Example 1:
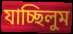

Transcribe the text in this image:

যাচ্ছিলুম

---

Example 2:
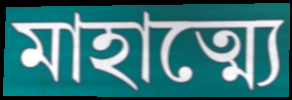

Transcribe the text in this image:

মাহাত্ম্যে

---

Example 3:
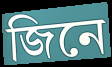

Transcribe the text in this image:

জিনে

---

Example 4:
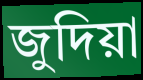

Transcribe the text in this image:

জুদিয়া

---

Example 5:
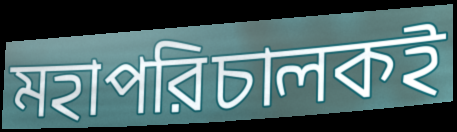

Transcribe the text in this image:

মহাপরিচালকই